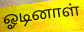
ஓடினாள்